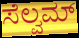
ಸೆಲ್ವಮ್